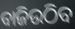
ବାଜିଉଠିବ